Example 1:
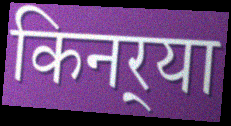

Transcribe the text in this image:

किनर्या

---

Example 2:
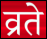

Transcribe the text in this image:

व्रते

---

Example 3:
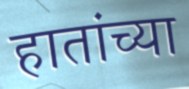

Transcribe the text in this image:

हातांच्या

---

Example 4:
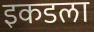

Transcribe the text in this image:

इकडला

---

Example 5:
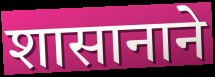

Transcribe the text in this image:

शासानाने